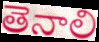
తెనాలి